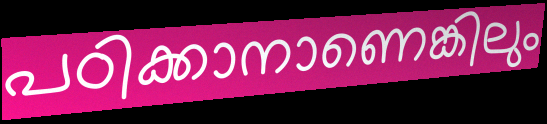
പഠിക്കാനാണെങ്കിലും